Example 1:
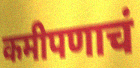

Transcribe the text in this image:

कमीपणाचं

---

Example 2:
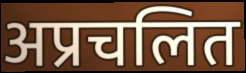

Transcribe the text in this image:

अप्रचलित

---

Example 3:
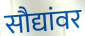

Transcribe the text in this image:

सौद्यांवर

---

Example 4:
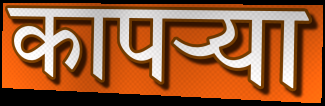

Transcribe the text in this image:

कापर्‍या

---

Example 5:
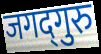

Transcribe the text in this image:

जगद्‍गुरु